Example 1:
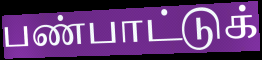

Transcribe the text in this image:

பண்பாட்டுக்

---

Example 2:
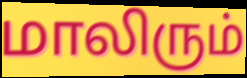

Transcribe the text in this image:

மாலிரும்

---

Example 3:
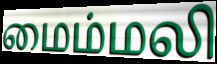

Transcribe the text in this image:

மைம்மலி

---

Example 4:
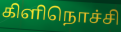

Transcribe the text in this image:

கிளிநொச்சி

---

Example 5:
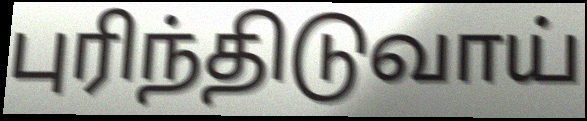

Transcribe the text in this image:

புரிந்திடுவாய்